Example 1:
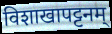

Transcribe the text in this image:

विशाखापट्टनम्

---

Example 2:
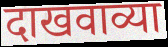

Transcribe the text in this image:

दाखवाव्या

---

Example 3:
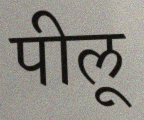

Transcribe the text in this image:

पीलू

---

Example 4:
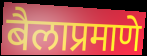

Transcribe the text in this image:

बैलाप्रमाणे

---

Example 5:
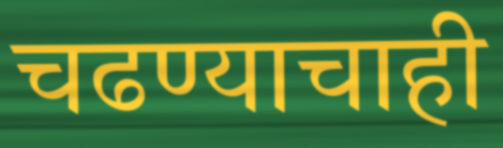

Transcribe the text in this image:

चढण्याचाही